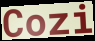
Cozi